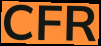
CFR